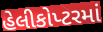
હેલીકોપ્ટરમાં